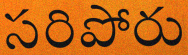
సరిపోరు